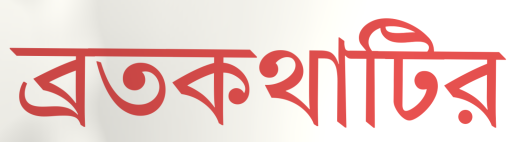
ব্রতকথাটির